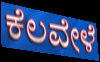
ಕೆಲವೇಳೆ